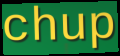
chup